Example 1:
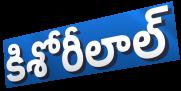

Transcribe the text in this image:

కిశోరీలాల్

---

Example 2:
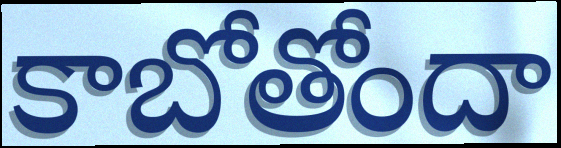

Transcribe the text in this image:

కాబోతోందా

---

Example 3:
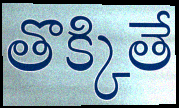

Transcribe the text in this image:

తొక్కితే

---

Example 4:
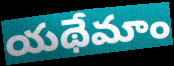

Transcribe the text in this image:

యథేమాం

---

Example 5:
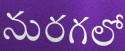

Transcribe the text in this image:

నురగలో